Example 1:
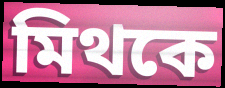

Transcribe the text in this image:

মিথকে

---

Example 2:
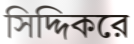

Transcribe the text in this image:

সিদ্দিকরে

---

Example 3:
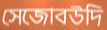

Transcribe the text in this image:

সেজোবউদি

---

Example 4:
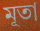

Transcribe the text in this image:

মূতা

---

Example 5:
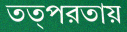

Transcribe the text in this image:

তত্পরতায়